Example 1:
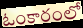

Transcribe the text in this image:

ఓంకారంలో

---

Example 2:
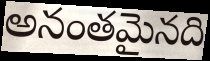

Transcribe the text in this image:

అనంతమైనది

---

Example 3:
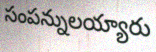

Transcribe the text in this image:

సంపన్నులయ్యారు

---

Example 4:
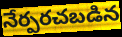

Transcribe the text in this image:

నేర్పరచబడిన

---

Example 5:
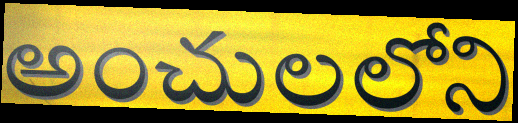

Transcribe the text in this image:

అంచులలోని